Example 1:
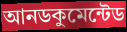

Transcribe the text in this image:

আনডকুমেন্টেড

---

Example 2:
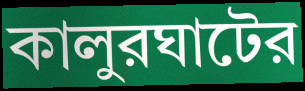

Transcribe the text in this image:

কালুরঘাটের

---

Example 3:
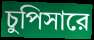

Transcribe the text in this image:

চুপিসারে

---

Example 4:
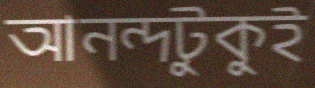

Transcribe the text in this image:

আনন্দটুকুই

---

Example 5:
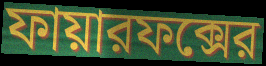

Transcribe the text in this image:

ফায়ারফক্সের